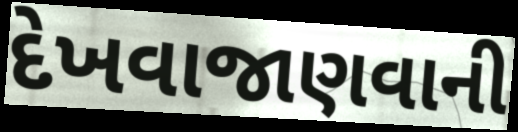
દેખવાજાણવાની